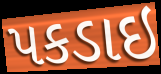
પકડાઇ